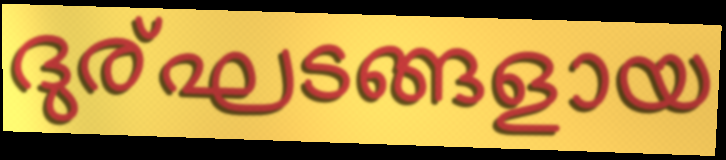
ദുര്ഘടങ്ങളായ